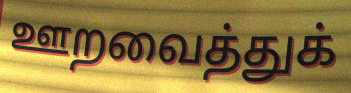
ஊறவைத்துக்